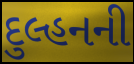
દુલ્હનની